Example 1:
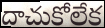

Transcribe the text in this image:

దాచుకోలేక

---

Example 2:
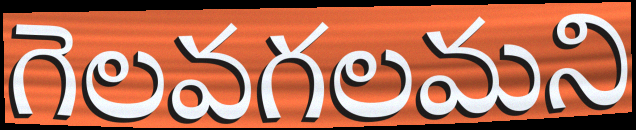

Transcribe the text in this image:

గెలవగలమని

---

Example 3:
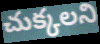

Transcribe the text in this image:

చుక్కలని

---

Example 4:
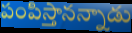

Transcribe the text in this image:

పంపిస్తానన్నాడు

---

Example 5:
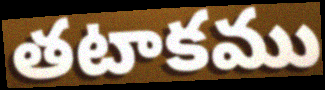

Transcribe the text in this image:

తటాకము